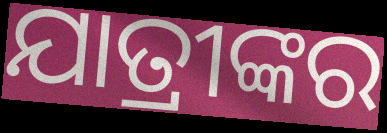
ଯାତ୍ରୀଙ୍କର